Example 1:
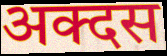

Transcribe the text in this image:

अक्दस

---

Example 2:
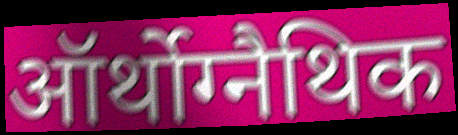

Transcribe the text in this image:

ऑर्थोग्नैथिक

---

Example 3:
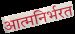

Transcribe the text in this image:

आत्मनिर्भरत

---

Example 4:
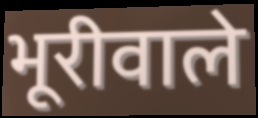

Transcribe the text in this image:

भूरीवाले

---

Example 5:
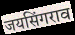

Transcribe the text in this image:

जयसिंगराव